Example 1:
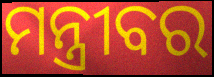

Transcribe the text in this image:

ମନ୍ତ୍ରୀବର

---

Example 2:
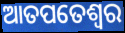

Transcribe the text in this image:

ଆତପତେଶ୍ୱର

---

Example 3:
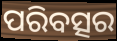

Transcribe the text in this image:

ପରିବତ୍ସର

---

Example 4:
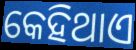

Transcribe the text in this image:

କେହିଥାଏ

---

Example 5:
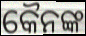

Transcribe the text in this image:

କୈନଙ୍କ